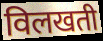
विलखती